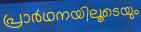
പ്രാർഥനയിലൂടെയും